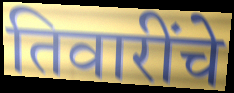
तिवारींचे